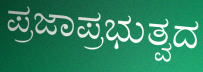
ಪ್ರಜಾಪ್ರಭುತ್ವದ